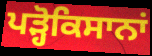
ਪੜ੍ਹੋਕਿਸਾਨਾਂ